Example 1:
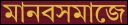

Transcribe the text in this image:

মানবসমাজে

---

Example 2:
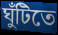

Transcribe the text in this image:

ঘুঁটিতে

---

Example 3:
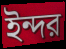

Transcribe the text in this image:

ইন্দর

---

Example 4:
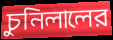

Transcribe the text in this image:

চুনিলালের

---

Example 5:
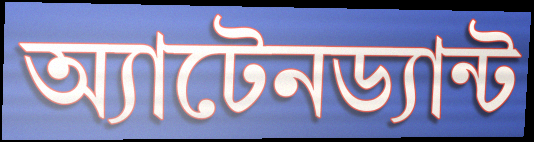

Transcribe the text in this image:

অ্যাটেনড্যান্ট